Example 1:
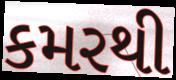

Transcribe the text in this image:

કમરથી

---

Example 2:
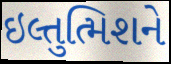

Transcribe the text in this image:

ઇલ્તુત્મિશને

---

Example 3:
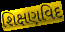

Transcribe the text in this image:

શિક્ષણવિદ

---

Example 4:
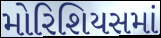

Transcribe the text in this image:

મોરિશિયસમાં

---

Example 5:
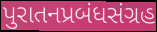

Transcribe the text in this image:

પુરાતનપ્રબંધસંગ્રહ